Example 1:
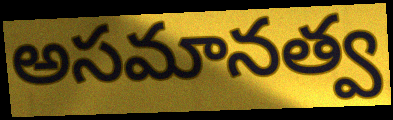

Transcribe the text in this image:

అసమానత్వ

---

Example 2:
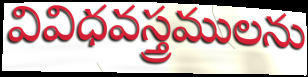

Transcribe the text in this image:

వివిధవస్త్రములను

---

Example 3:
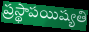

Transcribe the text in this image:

ప్రస్థాపయిష్యతి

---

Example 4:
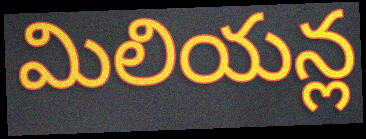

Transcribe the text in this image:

మిలియన్ల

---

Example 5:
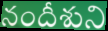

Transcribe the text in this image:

నందీశుని